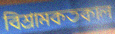
বিশ্রামকতকাল